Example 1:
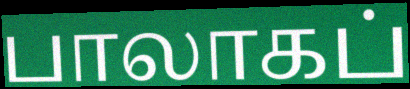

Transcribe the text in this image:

பாலாகப்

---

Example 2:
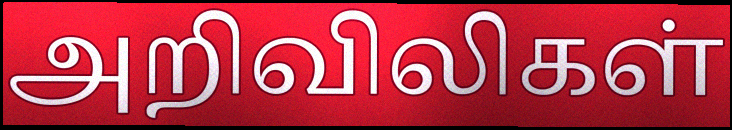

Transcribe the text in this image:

அறிவிலிகள்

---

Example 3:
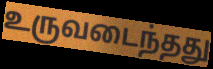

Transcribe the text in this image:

உருவடைந்தது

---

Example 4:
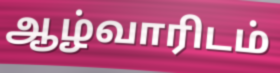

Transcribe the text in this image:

ஆழ்வாரிடம்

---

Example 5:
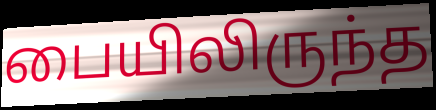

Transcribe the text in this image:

பையிலிருந்த